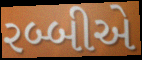
રબ્બીએ